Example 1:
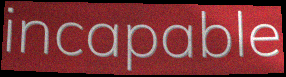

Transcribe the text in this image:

incapable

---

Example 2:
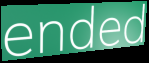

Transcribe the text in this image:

ended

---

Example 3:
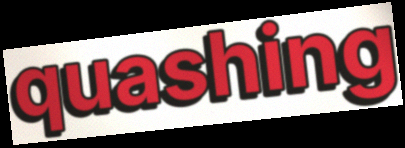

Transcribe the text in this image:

quashing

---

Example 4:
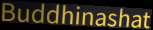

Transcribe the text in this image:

Buddhinashat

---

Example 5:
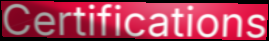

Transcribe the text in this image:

Certifications